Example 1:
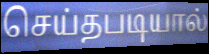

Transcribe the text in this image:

செய்தபடியால்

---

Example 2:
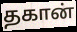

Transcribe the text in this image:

தகான்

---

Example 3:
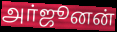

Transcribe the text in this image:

அர்ஜூனன்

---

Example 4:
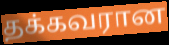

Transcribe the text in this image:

தக்கவரான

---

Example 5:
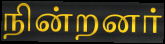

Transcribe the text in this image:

நின்றனர்